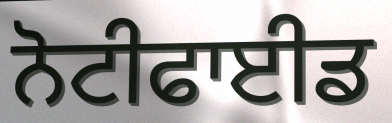
ਨੋਟੀਫਾਈਡ